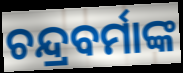
ଚନ୍ଦ୍ରବର୍ମାଙ୍କ